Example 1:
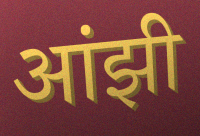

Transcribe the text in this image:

आंझी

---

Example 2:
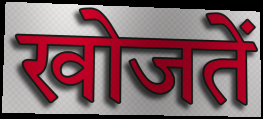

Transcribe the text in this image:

खोजतें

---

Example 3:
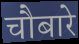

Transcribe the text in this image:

चौबारे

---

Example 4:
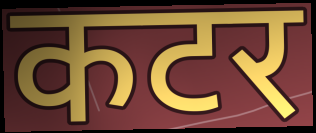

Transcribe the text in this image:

कटर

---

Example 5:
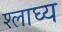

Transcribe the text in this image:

श्लाघ्य